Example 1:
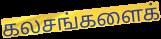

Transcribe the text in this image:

கலசங்களைக்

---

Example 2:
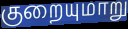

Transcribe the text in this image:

குறையுமாறு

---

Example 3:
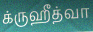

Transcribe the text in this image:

க்ருஹீத்வா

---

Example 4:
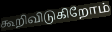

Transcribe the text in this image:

கூறிவிடுகிறோம்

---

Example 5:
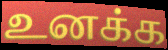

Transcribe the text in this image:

உனக்க